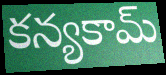
కన్యకామ్